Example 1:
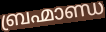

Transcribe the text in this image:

ബ്രഹ്മാണ്ഡ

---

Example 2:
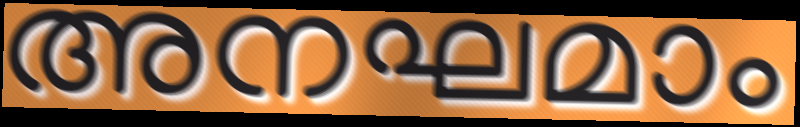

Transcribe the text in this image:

അനഘമാം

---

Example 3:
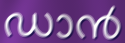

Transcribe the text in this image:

ഡാൻ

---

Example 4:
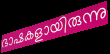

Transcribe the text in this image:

ഭാഷകളായിരുന്നു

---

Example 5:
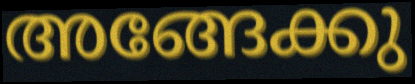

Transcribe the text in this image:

അങ്ങേക്കു